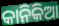
କାନିକିଆ